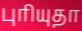
புரியுதா